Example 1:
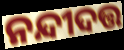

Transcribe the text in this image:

ନନ୍ଦୀଦତ୍ତ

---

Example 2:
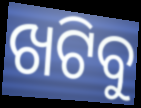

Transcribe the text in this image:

ଖଟିବୁ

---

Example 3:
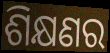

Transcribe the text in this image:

ଶିକ୍ଷଣର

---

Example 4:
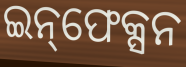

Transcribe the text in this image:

ଇନ୍‌ଫେକ୍ସନ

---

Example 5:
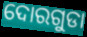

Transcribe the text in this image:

ଦୋରଗୁଡା